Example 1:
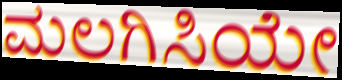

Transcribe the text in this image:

ಮಲಗಿಸಿಯೇ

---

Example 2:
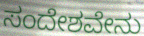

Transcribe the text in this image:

ಸಂದೇಶವೇನು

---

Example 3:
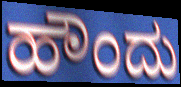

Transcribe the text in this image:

ಹೌಂದು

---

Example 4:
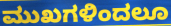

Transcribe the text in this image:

ಮುಖಗಳಿಂದಲೂ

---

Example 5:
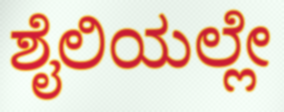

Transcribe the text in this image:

ಶೈಲಿಯಲ್ಲೇ